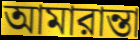
আমারান্তা